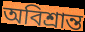
অবিশ্রান্ত